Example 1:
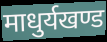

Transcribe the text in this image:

माधुर्यखण्ड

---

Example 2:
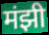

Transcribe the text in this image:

मंझी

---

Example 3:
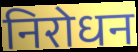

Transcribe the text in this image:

निरोधन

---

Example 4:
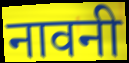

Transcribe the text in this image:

नावनी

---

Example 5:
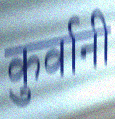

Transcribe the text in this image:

कुर्वानी